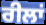
ਰੀਲਾਂ